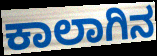
ಕಾಲಾಗಿನ